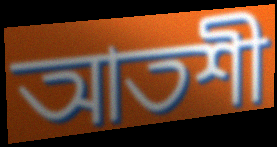
আতশী